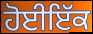
ਹੋਈਇੱਕ